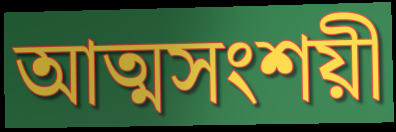
আত্মসংশয়ী